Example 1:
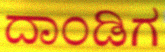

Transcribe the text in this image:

ದಾಂಡಿಗ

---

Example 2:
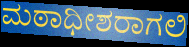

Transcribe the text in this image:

ಮಠಾಧೀಶರಾಗಲಿ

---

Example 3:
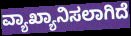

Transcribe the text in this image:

ವ್ಯಾಖ್ಯಾನಿಸಲಾಗಿದೆ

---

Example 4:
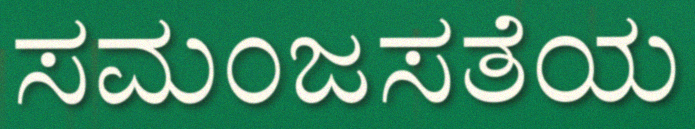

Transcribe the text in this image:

ಸಮಂಜಸತೆಯ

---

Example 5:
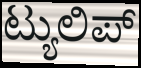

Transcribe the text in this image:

ಟ್ಯುಲಿಪ್